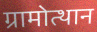
ग्रामोत्थान